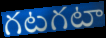
గటగటా